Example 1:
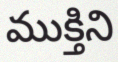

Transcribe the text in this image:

ముక్తిని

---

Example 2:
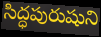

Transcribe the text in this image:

సిద్ధపురుషుని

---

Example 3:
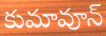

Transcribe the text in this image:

కుమావూన్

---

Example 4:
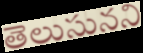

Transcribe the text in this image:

తెలుసునని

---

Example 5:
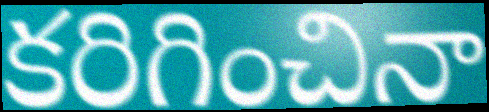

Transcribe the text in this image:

కరిగించినా